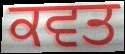
ਕਵਤ